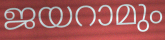
ജയറാമും